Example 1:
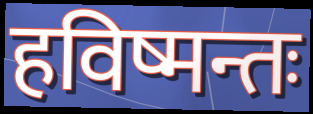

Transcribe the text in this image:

हविष्मन्तः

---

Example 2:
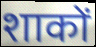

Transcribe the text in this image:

शाकों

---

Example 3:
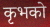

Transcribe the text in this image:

कृभको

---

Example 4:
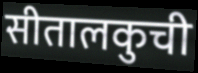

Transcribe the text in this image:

सीतालकुची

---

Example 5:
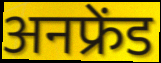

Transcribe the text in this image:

अनफ्रेंड